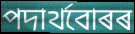
পদাৰ্থবোৰৰ